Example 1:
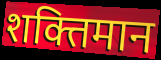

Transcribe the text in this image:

शक्तिमान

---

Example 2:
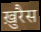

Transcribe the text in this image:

ख़ुरैस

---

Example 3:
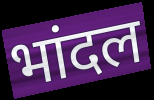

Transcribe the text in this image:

भांदल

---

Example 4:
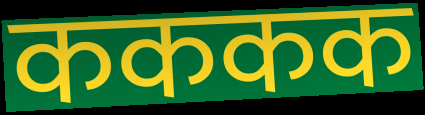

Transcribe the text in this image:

कककक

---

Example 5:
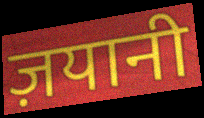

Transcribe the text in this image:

ज़यानी